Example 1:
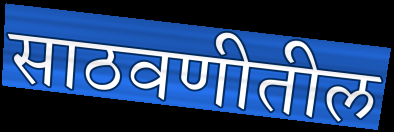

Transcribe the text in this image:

साठवणीतील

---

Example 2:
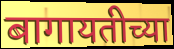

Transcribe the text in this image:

बागायतीच्या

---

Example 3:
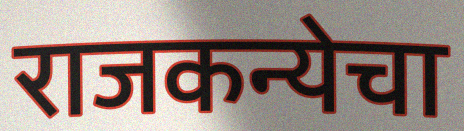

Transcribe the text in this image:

राजकन्येचा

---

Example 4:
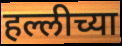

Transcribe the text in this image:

हल्लीच्या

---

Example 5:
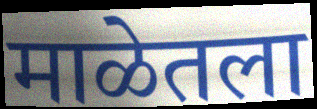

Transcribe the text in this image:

माळेतला